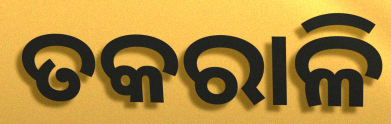
ତକରାଳି